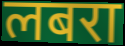
लबरा